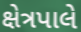
ક્ષેત્રપાલે